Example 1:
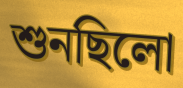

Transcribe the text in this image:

শুনছিলো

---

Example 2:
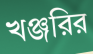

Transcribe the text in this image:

খঞ্জরির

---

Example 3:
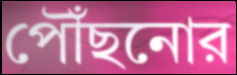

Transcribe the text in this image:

পৌঁছনোর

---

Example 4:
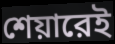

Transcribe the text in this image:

শেয়ারেই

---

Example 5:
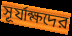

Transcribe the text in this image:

সূর্যাক্ষদের